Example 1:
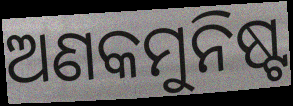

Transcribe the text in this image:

ଅଣକମୁନିଷ୍ଟ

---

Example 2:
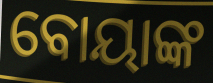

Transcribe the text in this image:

ବୋୟାଙ୍କ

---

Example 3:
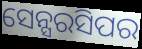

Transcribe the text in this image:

ସେନ୍ସରସିପର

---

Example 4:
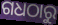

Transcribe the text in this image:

ଗଧଠାରୁ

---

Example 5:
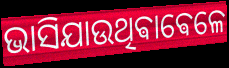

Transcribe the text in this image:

ଭାସିଯାଉଥିଵାଵେଳେ